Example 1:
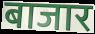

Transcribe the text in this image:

बाजार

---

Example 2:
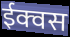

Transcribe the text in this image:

ईक्‍वस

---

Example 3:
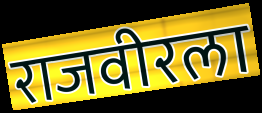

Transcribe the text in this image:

राजवीरला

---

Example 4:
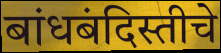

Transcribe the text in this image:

बांधबंदिस्तीचे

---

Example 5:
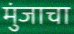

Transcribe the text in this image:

मुंजाचा